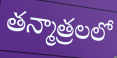
తన్మాత్రలలో